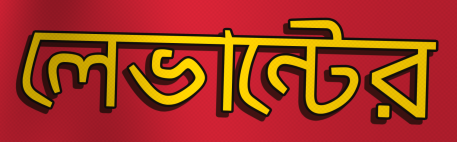
লেভান্টের